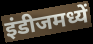
इंडीजमध्यें